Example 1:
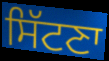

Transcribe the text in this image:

ਸਿੱਟਣਾ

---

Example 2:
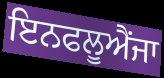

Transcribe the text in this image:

ਇਨਫਲੂਐਂਜਾ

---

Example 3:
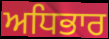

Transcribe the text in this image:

ਅਧਿਭਾਰ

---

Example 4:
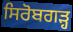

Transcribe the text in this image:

ਸਿਰੋਬਗੜ੍ਹ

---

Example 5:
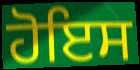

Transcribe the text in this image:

ਹੋਇਸ